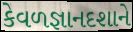
કેવળજ્ઞાનદશાને